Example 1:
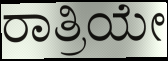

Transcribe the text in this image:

ರಾತ್ರಿಯೇ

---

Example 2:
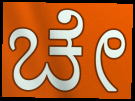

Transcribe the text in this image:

ಚೇ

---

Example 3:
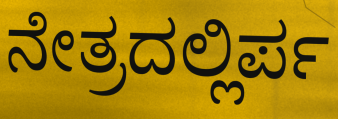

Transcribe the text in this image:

ನೇತ್ರದಲ್ಲಿರ್ಪ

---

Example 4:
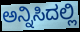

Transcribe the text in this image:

ಅನ್ನಿಸಿದಲ್ಲಿ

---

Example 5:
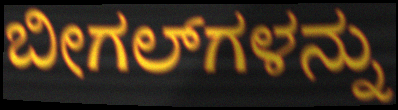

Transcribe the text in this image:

ಬೀಗಲ್‌ಗಳನ್ನು